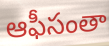
ఆఫీసంతా